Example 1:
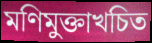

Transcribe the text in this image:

মণিমুক্তাখচিত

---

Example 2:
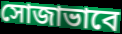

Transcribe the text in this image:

সোজাভাবে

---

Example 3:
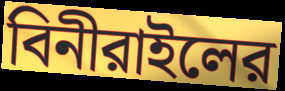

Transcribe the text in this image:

বিনীরাইলের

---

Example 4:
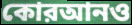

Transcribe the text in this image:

কোরআনও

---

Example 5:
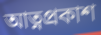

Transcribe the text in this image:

আত্নপ্রকাশ